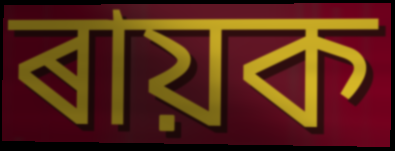
ৰায়ক